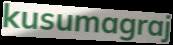
kusumagraj